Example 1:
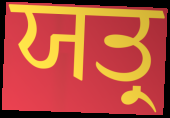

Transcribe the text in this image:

ਯਤ੍ਰ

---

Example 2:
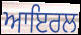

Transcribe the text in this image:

ਆਇਰਲ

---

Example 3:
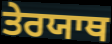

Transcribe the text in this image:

ਤੇਰਯਾਥ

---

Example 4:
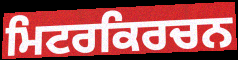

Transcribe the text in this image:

ਮਿਟਰਕਿਰਚਨ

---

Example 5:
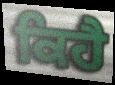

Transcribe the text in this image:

ਕਿਹੈ